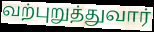
வற்புறுத்துவார்